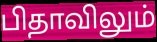
பிதாவிலும்